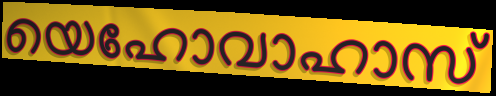
യെഹോവാഹാസ്